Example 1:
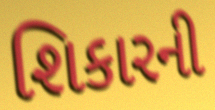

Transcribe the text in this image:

શિકારની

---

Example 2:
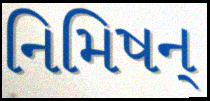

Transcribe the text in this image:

નિમિષન્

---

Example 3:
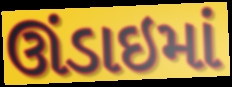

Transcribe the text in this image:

ઊંડાઇમાં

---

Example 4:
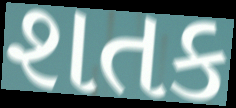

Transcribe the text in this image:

શતક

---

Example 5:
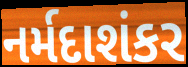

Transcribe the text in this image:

નર્મદાશંકર